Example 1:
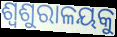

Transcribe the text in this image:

ଶ୍ୱଶୁରାଳୟକୁ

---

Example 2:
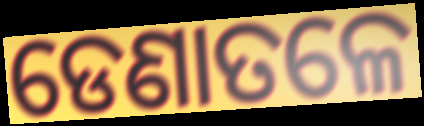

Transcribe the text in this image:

ଡେଣାତଳେ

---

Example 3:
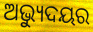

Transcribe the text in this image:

ଅଭ୍ୟୁଦୟର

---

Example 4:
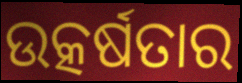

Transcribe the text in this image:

ଉତ୍କର୍ଷତାର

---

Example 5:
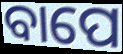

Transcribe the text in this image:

ବାପେ